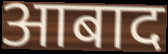
आबाद